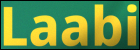
Laabi